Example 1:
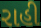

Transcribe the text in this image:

રાહી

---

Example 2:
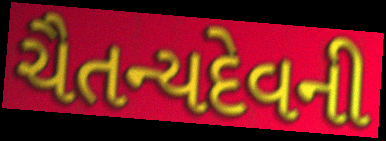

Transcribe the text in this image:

ચૈતન્યદેવની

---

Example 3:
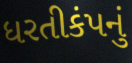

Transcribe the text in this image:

ધરતીકંપનું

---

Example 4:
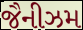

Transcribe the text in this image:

જૈનીઝમ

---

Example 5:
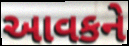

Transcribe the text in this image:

આવકને